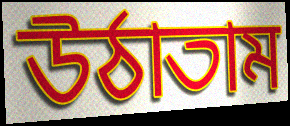
উঠাতাম